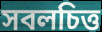
সবলচিত্ত